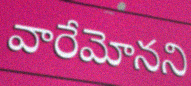
వారేమోనని